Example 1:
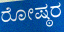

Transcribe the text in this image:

ರೋಷ್ಠರ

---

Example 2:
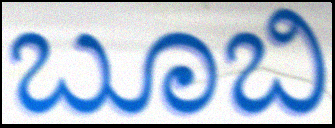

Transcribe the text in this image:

ಬೂಬಿ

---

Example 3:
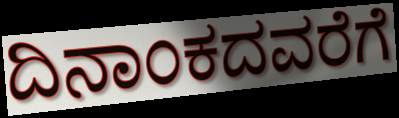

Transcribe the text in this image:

ದಿನಾಂಕದವರೆಗೆ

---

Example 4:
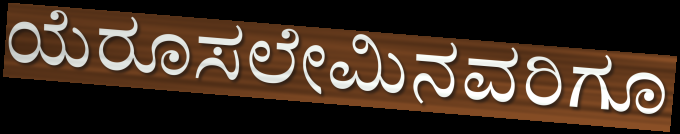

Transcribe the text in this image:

ಯೆರೂಸಲೇಮಿನವರಿಗೂ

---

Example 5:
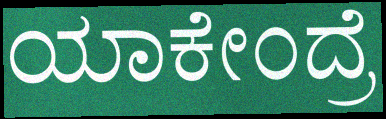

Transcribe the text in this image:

ಯಾಕೇಂದ್ರೆ